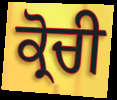
ਕ੍ਰੋਚੀ